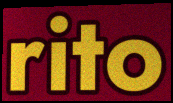
rito